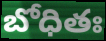
బోధితః